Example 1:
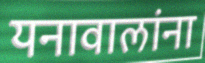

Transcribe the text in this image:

यनावालांना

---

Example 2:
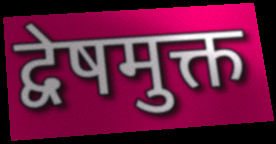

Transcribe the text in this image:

द्वेषमुक्त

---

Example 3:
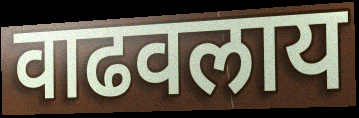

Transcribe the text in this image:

वाढवलाय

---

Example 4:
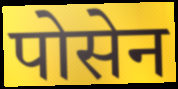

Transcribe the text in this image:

पोसेन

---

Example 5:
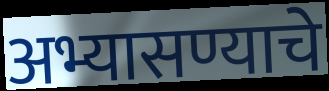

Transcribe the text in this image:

अभ्यासण्याचे